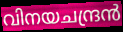
വിനയചന്ദ്രൻ